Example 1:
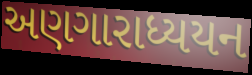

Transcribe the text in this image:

અણગારાધ્યયન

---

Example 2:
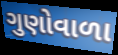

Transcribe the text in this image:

ગુણોવાળા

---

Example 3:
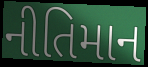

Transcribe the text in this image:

નીતિમાન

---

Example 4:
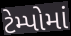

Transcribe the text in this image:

ટેમ્પોમાં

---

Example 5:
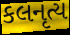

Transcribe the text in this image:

કલનૃત્ય